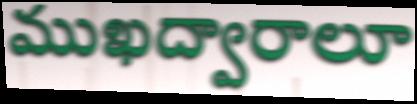
ముఖద్వారాలూ